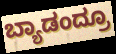
ಬ್ಯಾಡಂದ್ರೂ